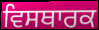
ਵਿਸਥਾਰਕ